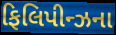
ફિલિપીન્ઝના